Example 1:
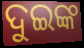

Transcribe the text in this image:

ଦୁଇଙ୍କ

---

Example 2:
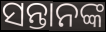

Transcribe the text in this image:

ସନ୍ତାନଙ୍କ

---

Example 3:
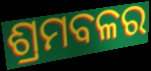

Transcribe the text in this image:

ଶ୍ରମବଳର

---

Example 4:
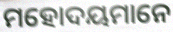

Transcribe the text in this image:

ମହୋଦୟମାନେ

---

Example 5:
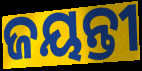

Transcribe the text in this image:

ଜୟନ୍ତୀ